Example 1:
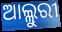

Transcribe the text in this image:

ଆଲ୍ଲୁରୀ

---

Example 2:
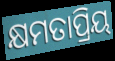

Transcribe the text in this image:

କ୍ଷମତାପ୍ରିୟ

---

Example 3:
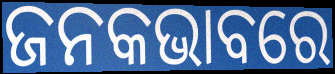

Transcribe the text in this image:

ଜନକଭାବରେ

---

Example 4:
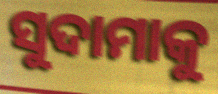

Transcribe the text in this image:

ସୁଦାମାକୁ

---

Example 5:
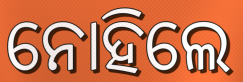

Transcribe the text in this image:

ନୋହିଲେ